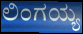
ಲಿಂಗಯ್ಯ